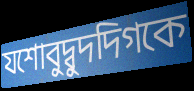
যশোবুদ্বুদদিগকে